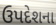
ઉપદેશના